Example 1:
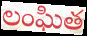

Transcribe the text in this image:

లంఘిత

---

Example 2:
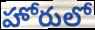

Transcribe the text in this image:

హోరులో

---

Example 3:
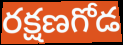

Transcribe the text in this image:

రక్షణగోడ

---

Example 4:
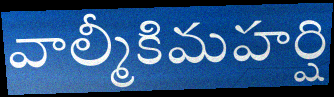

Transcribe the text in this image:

వాల్మీకిమహర్షి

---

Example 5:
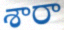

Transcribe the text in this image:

శారా